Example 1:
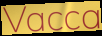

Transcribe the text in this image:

Vacca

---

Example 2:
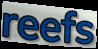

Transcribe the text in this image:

reefs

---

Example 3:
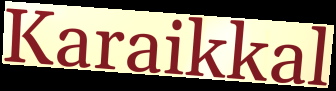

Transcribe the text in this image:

Karaikkal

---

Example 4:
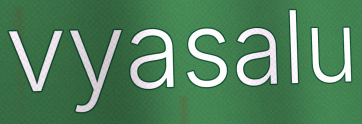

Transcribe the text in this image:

vyasalu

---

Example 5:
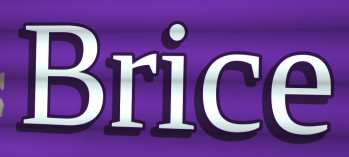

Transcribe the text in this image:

Brice